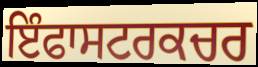
ਇੰਫਾਸਟਰਕਚਰ